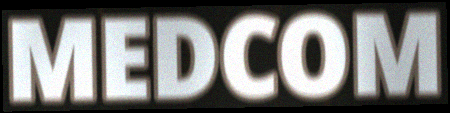
MEDCOM